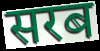
सरब